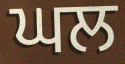
ਘਲ